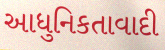
આધુનિકતાવાદી